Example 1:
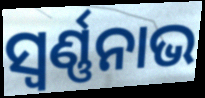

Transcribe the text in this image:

ସ୍ବର୍ଣ୍ଣନାଭ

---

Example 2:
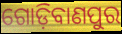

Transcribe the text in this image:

ଗୋଡ଼ିବାଣପୁର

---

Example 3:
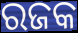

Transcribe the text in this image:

ରଜକ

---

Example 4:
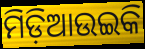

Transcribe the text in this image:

ମିଡ଼ିଆଉଇକି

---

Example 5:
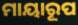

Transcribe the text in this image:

ମାୟାରୂପ